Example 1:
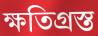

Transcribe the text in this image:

ক্ষতিগ্ৰস্ত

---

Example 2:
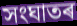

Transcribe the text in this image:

সংঘাতৰ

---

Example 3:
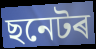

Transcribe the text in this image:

ছনেটৰ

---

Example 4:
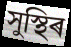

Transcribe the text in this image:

সুস্থিৰ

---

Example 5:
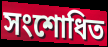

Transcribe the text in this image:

সংশোধিত